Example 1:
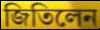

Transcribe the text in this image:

জিতিলেন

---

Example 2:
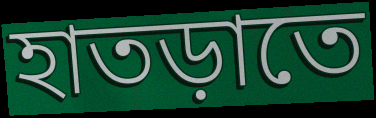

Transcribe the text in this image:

হাতড়াতে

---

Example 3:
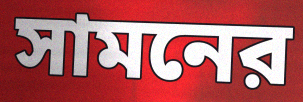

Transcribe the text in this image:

সামনের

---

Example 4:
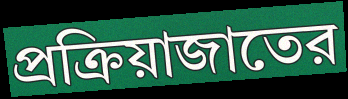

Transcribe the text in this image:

প্রক্রিয়াজাতের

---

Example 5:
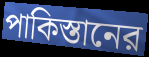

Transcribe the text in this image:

পাকিস্তানের